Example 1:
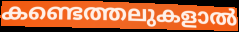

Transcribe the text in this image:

കണ്ടെത്തലുകളാൽ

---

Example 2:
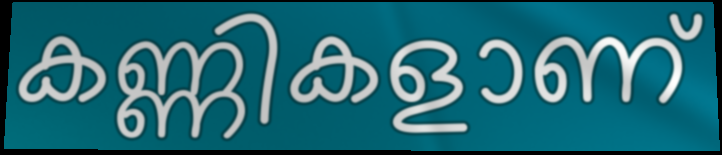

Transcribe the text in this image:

കണ്ണികളാണ്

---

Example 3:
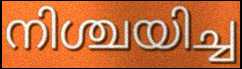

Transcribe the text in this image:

നിശ്ചയിച്ച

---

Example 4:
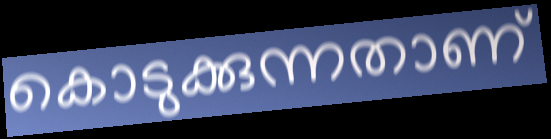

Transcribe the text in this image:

കൊടുക്കുന്നതാണ്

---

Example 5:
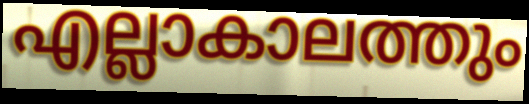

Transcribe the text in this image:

എല്ലാകാലത്തും